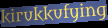
kirukkufying